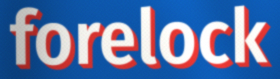
forelock